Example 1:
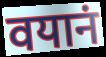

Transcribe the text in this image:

वयानं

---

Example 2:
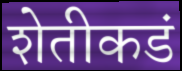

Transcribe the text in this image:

शेतीकडं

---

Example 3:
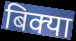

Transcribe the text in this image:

बिक्या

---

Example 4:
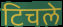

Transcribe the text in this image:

टिचले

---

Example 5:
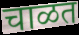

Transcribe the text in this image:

चाळत